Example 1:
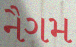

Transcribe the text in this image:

નૈગમ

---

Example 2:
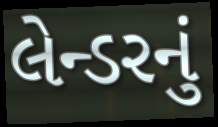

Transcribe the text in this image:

લેન્ડરનું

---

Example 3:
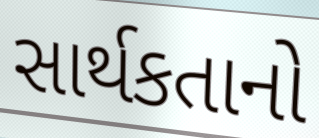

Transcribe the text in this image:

સાર્થકતાનો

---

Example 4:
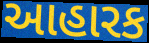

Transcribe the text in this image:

આહારક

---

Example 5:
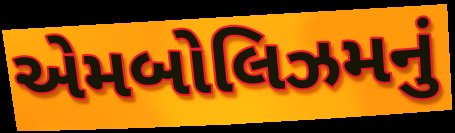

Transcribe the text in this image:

એમબોલિઝમનું